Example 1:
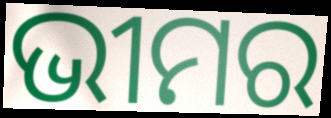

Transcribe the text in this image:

ଭୀମର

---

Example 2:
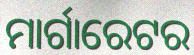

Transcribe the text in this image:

ମାର୍ଗାରେଟର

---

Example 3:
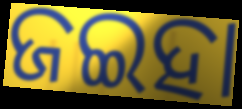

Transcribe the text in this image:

ଜଇହା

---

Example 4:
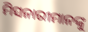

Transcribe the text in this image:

ମିସନାରୀମାନଙ୍କୁ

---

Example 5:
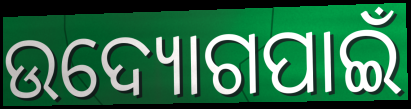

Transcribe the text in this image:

ଉଦ୍ୟୋଗପାଇଁ